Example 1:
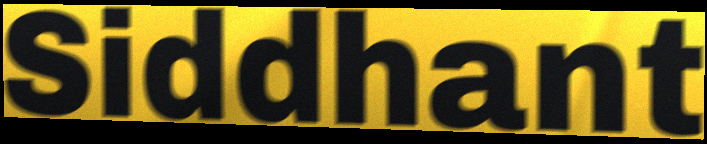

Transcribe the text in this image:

Siddhant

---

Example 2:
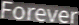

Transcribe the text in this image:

Forever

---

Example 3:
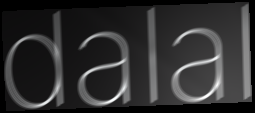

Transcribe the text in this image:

dalal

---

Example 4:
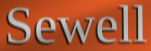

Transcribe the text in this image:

Sewell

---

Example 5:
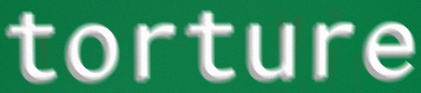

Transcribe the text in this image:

torture